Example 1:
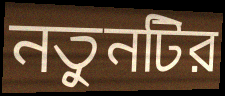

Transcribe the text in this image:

নতুনটির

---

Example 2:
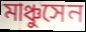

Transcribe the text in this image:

মাঞ্চুসেন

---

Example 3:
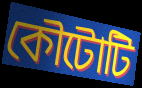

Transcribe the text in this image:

কৌটোটি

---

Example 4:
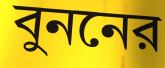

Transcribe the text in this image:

বুননের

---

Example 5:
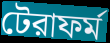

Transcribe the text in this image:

টেরাফর্ম